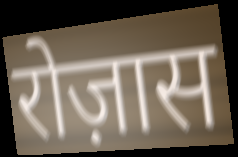
रोज़ास